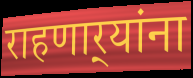
राहणार्यांना